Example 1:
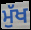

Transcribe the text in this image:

ਮੁੱਖ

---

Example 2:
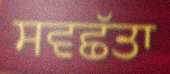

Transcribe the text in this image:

ਸਵਛੱਤਾ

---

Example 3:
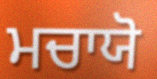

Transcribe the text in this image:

ਮਚਾਯੋ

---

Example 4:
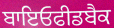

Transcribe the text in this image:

ਬਾਇਓਫੀਡਬੈਕ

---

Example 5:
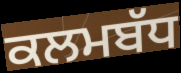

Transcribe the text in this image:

ਕਲਮਬੱਧ